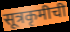
सूत्रकृमीची